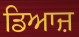
ਡਿਆਜ਼